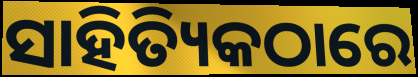
ସାହିତ୍ୟିକଠାରେ